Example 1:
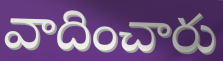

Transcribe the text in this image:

వాదించారు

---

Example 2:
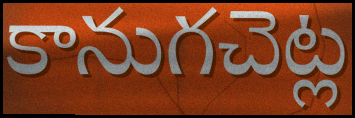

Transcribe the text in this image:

కానుగచెట్ల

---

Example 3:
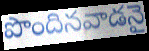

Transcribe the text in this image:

పొందినవాడనై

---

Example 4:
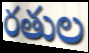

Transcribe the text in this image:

రతుల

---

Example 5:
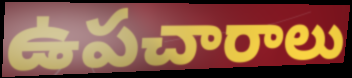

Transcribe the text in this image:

ఉపచారాలు